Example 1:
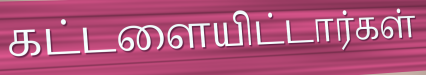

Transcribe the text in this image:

கட்டளையிட்டார்கள்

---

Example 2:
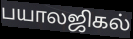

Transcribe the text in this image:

பயாலஜிகல்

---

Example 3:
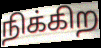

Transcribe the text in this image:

நிக்கிற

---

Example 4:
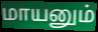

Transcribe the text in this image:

மாயனும்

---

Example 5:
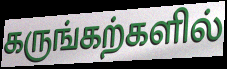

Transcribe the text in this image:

கருங்கற்களில்